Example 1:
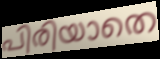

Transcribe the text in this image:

പിരിയാതെ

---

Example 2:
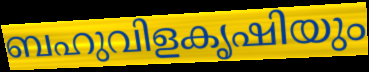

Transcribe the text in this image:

ബഹുവിളകൃഷിയും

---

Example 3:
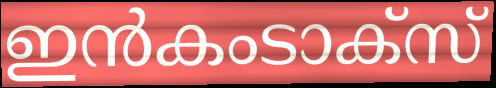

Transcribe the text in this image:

ഇൻകംടാക്സ്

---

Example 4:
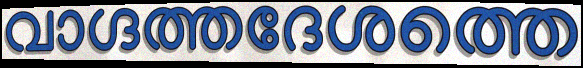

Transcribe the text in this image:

വാഗ്ദത്തദേശത്തെ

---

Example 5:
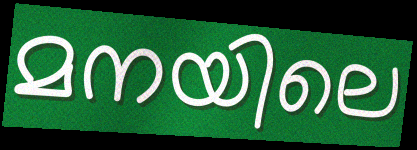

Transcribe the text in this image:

മനയിലെ